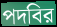
পদবির